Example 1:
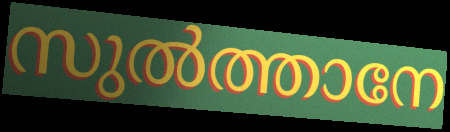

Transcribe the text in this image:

സുൽത്താനേ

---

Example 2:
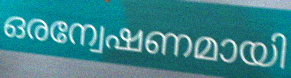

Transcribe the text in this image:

ഒരന്വേഷണമായി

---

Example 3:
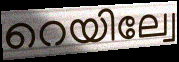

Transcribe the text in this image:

റെയില്വേ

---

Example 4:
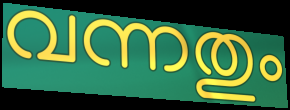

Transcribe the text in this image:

വന്നതും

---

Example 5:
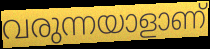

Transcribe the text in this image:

വരുന്നയാളാണ്